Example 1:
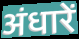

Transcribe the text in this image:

अंधारें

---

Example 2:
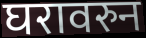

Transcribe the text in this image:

घरावरुन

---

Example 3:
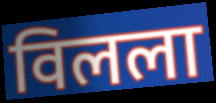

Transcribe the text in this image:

विलला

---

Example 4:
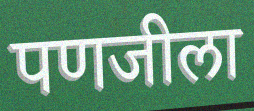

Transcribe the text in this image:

पणजीला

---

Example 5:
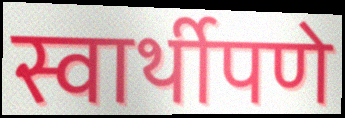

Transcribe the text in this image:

स्वार्थीपणे